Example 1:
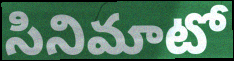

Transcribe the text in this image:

సినిమాటో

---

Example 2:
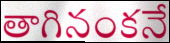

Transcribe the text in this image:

తాగినంకనే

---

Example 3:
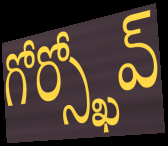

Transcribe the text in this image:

గోర్స్ఖోవ్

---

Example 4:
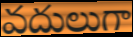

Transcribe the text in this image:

వదులుగా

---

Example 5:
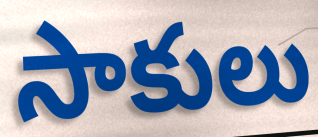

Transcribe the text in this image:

సాకులు